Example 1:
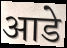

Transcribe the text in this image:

आडे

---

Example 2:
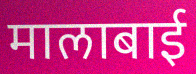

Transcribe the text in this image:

मालाबाई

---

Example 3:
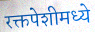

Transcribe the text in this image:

रक्तपेशीमध्ये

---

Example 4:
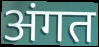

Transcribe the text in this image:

अंगत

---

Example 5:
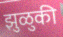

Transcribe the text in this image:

झुळुकी